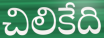
చిలికేది